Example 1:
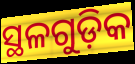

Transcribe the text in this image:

ସ୍ଥଳଗୁଡ଼ିକ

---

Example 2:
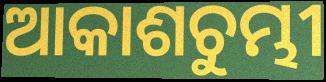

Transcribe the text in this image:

ଆକାଶଚୁମ୍ଭୀ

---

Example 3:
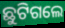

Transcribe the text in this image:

ଛୁଟିଗଲେ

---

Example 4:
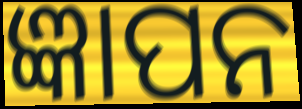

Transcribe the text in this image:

ଜ୍ଞାପନ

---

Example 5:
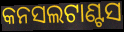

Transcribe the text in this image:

କନସଲଟାଣ୍ଟସ